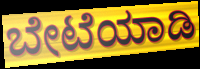
ಬೇಟೆಯಾಡಿ